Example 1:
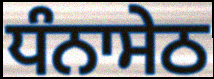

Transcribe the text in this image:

ਧੰਨਾਸੇਠ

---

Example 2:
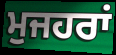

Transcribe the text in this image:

ਮੁਜਹਰਾਂ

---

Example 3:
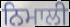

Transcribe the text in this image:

ਨਿਮਾਲੀ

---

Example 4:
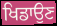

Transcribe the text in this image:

ਖਿਡਾਉਣ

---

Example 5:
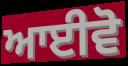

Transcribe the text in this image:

ਆਈਵੋ